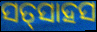
ସତ୍‍ସାହସ